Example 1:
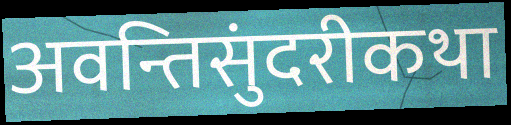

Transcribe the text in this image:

अवन्तिसुंदरीकथा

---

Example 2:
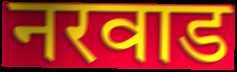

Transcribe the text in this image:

नरवाड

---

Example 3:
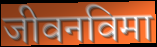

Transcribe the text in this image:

जीवनविमा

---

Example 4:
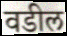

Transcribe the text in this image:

वडील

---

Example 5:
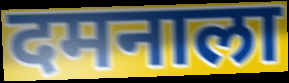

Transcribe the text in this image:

दमनाला